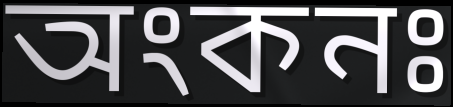
অংকনঃ